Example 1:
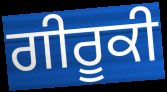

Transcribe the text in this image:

ਗੀਰੂਕੀ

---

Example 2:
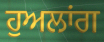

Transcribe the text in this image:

ਹੁਅਲਾਂਗ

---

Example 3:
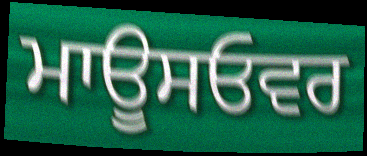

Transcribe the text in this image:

ਮਾਊਸਓਵਰ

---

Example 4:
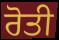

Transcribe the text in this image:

ਰੋਤੀ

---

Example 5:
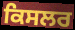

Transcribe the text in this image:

ਕਿਸਲਰ